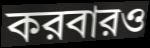
করবারও